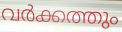
വർക്കത്തും